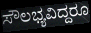
ಸೌಲಭ್ಯವಿದ್ದರೂ